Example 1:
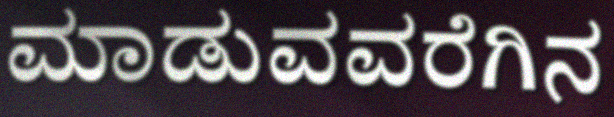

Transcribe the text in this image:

ಮಾಡುವವರೆಗಿನ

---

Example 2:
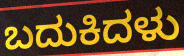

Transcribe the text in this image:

ಬದುಕಿದಳು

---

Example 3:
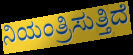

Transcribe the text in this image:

ನಿಯಂತ್ರಿಸುತ್ತಿದೆ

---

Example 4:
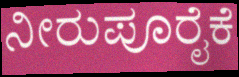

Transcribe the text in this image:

ನೀರುಪೂರೈಕೆ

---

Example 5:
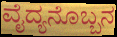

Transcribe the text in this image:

ವೈದ್ಯನೊಬ್ಬನ